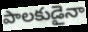
పాలకుడైనా